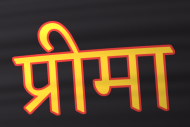
प्रीमा